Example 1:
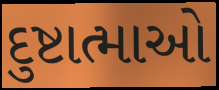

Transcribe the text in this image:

દુષ્ટાત્માઓ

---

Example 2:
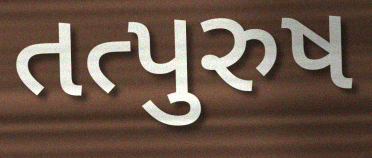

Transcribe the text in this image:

તત્પુરુષ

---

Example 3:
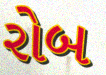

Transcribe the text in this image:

રોબ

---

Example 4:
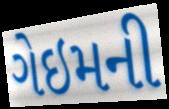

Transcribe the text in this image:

ગેઇમની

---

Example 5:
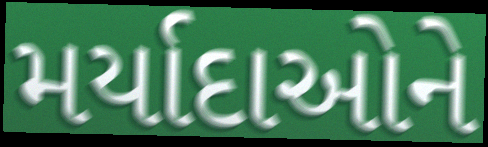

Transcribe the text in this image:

મર્યાદાઓને